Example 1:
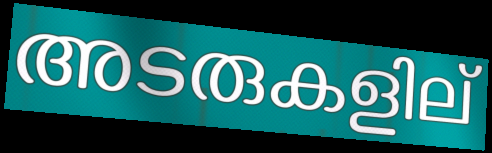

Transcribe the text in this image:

അടരുകളില്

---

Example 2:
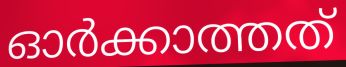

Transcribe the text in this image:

ഓർക്കാത്തത്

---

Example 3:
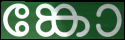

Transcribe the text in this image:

ങ്കോ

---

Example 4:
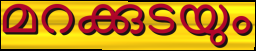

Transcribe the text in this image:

മറക്കുടയും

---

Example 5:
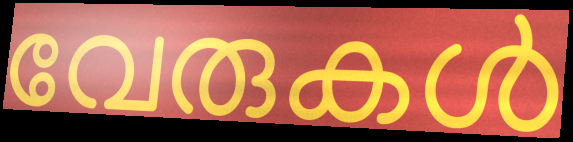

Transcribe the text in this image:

വേരുകൾ